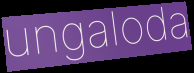
ungaloda